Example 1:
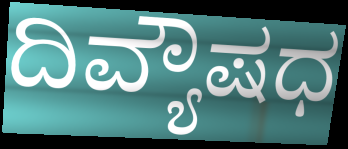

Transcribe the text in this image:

ದಿವ್ಯೌಷಧ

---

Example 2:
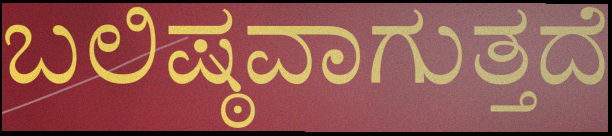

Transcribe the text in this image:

ಬಲಿಷ್ಠವಾಗುತ್ತದೆ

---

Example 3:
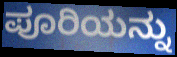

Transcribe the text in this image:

ಪೂರಿಯನ್ನು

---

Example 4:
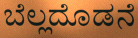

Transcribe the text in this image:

ಬೆಲ್ಲದೊಡನೆ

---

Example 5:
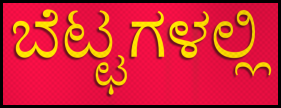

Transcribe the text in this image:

ಬೆಟ್ಟಗಳಲ್ಲಿ